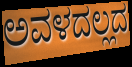
ಅವಳದಲ್ಲದ